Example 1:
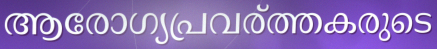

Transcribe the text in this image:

ആരോഗ്യപ്രവര്ത്തകരുടെ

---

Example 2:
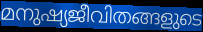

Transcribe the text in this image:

മനുഷ്യജീവിതങ്ങളുടെ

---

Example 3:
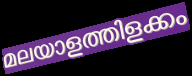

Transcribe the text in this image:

മലയാളത്തിളക്കം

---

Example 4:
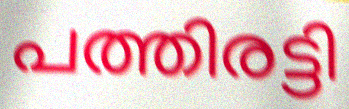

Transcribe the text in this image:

പത്തിരട്ടി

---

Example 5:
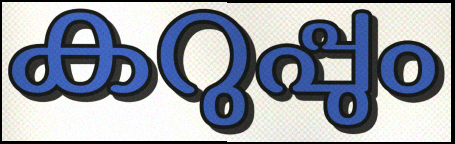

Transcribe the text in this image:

കറുപ്പും